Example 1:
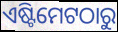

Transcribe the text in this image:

ଏଷ୍ଟିମେଟଠାରୁ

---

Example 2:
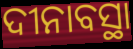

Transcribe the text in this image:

ଦୀନାବସ୍ଥା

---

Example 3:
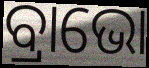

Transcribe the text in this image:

ବ୍ରାଭୋ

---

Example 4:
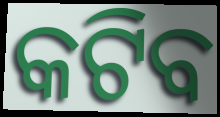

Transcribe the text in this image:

କଟିବ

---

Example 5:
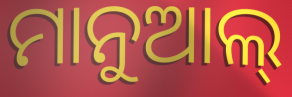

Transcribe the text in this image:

ମାନୁଆଲ୍